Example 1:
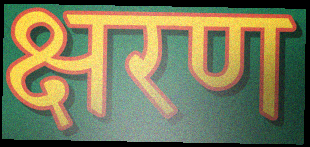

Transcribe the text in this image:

क्षरण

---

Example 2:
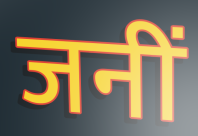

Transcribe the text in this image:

जनीं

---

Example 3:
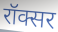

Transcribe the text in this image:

रॉक्सर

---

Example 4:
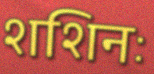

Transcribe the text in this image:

शशिनः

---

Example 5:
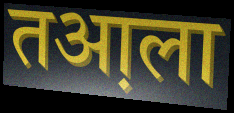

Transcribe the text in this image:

तआ़ला